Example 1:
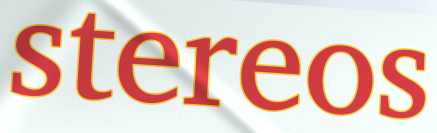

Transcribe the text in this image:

stereos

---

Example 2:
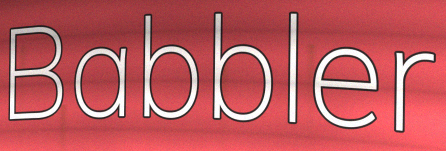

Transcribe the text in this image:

Babbler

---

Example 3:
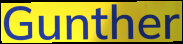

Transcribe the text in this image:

Gunther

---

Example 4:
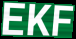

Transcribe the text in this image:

EKF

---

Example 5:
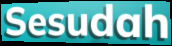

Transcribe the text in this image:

Sesudah